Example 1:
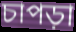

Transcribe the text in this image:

চাপড়া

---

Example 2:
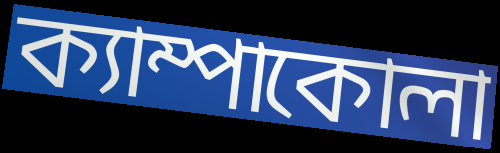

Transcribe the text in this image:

ক্যাম্পাকোলা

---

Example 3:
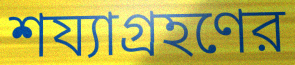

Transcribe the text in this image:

শয্যাগ্রহণের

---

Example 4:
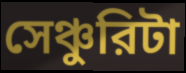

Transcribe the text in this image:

সেঞ্চুরিটা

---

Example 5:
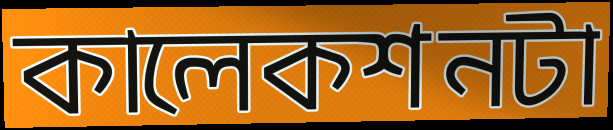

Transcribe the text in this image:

কালেকশনটা